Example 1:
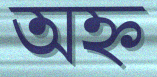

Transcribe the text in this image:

অহ্ন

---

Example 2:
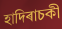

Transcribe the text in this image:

হাদিৰাচকী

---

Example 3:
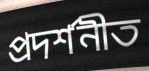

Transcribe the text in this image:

প্ৰদৰ্শনীত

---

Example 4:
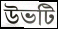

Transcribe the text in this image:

উভটি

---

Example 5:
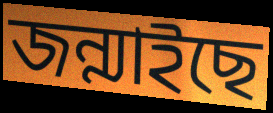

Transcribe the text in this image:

জন্মাইছে